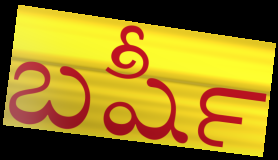
బషీర్‍